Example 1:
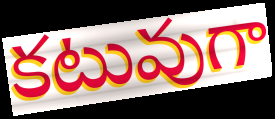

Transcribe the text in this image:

కటువుగా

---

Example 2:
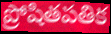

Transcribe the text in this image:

ప్రోషితపతిక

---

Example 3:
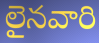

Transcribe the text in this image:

లైనవారి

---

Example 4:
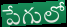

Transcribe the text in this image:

పేగులో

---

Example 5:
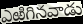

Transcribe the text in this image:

ఎఱిగినవాడు